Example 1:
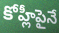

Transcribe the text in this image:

కోహ్లీపైనే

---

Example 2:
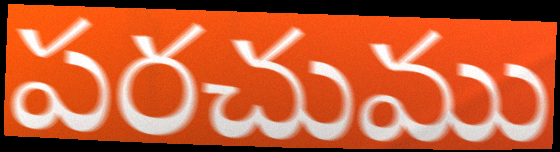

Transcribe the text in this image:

పరచుము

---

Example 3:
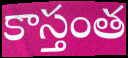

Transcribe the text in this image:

కాస్తంత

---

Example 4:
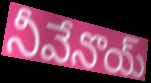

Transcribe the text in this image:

నీవేనొయ్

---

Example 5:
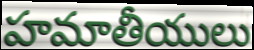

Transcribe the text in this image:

హమాతీయులు